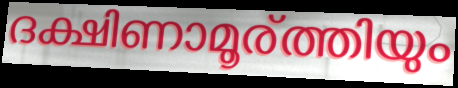
ദക്ഷിണാമൂര്ത്തിയും